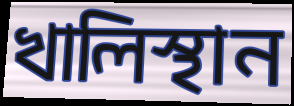
খালিস্থান